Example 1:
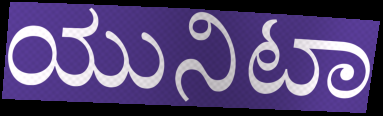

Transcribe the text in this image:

ಯುನಿಟಾ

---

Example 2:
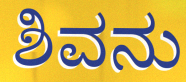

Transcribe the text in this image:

ಶಿವನು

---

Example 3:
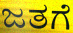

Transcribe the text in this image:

ಜತಗೆ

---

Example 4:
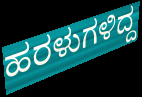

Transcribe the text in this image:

ಹರಳುಗಳಿದ್ದ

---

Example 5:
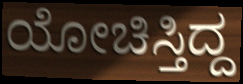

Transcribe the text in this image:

ಯೋಚಿಸ್ತಿದ್ದ